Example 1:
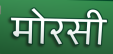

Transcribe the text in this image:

मोरसी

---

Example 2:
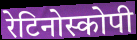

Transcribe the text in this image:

रेटिनोस्कोपी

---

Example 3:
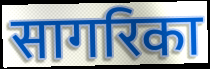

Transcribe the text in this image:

सागरिका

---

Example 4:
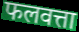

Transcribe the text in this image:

फलवत्ता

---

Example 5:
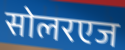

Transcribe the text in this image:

सोलरएज